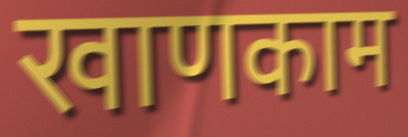
खाणकाम